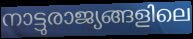
നാട്ടുരാജ്യങ്ങളിലെ